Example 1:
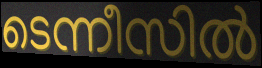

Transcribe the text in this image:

ടെന്നീസിൽ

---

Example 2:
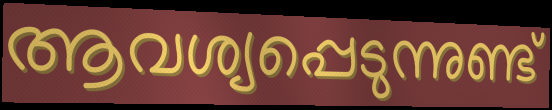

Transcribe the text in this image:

ആവശ്യപ്പെടുന്നുണ്ട്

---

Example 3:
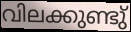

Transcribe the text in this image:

വിലക്കുണ്ടു്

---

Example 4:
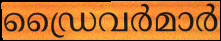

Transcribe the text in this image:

ഡ്രൈവർമാർ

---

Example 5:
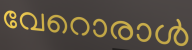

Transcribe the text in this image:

വേറൊരാൾ